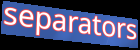
separators